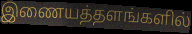
இணையத்தளங்களில்